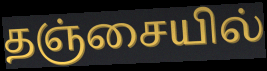
தஞ்சையில்